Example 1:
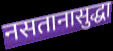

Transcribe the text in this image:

नसतानासुद्धा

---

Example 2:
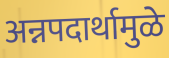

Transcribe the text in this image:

अन्नपदार्थामुळे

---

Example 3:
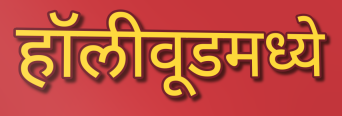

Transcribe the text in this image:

हॉलीवूडमध्ये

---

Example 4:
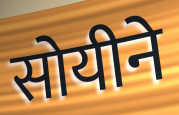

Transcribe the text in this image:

सोयीने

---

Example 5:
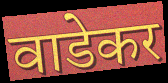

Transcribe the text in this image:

वाडेकर